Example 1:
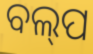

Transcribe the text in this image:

ବଲ୍‍ପ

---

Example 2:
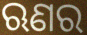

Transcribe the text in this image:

ଋଣର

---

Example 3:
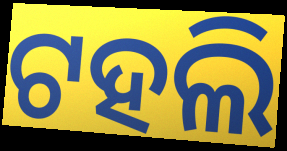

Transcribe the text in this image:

ଟହଲି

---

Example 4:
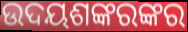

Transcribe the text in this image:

ଉଦୟଶଙ୍କରଙ୍କର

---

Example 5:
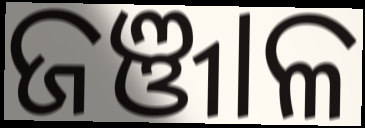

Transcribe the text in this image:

ଜଞ୍ଜାଳ